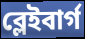
ব্লেইবার্গ